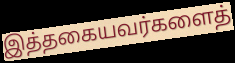
இத்தகையவர்களைத்